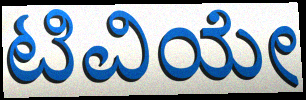
ಟಿವಿಯೇ